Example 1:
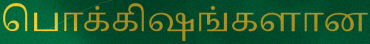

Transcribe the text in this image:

பொக்கிஷங்களான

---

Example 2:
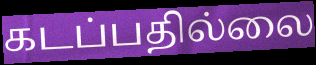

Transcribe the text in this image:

கடப்பதில்லை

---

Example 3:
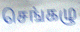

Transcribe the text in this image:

செங்கழு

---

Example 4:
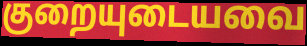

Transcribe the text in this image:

குறையுடையவை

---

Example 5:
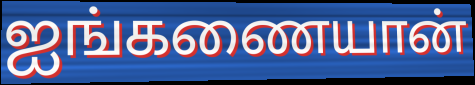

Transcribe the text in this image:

ஐங்கணையான்